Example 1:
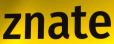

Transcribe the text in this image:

znate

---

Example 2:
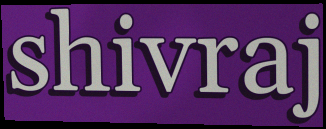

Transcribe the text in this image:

shivraj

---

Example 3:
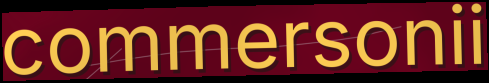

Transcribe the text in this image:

commersonii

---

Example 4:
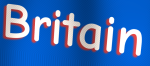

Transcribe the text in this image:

Britain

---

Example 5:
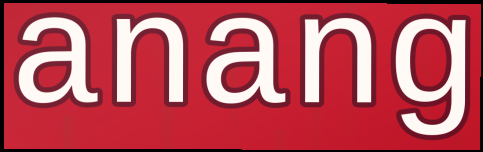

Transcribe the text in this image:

anang